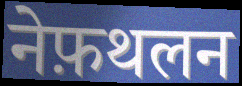
नेफ़थलन